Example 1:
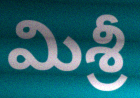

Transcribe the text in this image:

మిశ్రీ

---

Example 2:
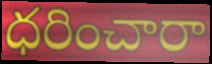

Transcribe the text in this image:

ధరించారా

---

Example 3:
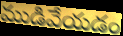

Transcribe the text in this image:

ముడివేయడం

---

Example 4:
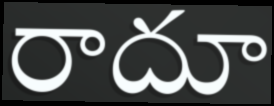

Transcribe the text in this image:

రాదూ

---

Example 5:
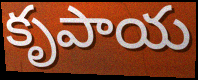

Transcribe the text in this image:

కృపాయ